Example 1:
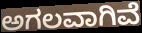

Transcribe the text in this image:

ಅಗಲವಾಗಿವೆ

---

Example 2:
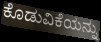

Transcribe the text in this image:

ಕೊಡುವಿಕೆಯನ್ನು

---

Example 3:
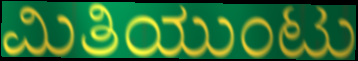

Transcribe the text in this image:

ಮಿತಿಯುಂಟು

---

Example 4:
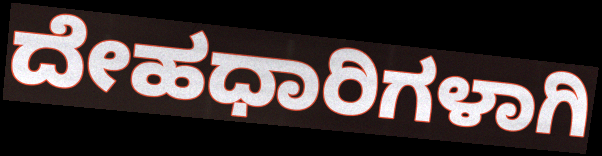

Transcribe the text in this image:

ದೇಹಧಾರಿಗಳಾಗಿ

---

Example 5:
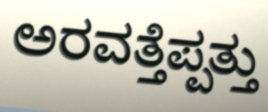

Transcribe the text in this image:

ಅರವತ್ತೆಪ್ಪತ್ತು